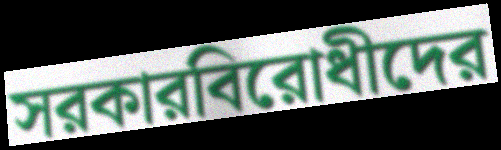
সরকারবিরোধীদের